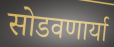
सोडवणार्या